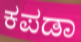
ಕಪಡಾ